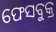
ଫେସବୁକ୍ର